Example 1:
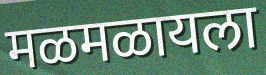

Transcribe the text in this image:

मळमळायला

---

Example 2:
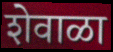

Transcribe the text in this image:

शेवाळा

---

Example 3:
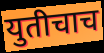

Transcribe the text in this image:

युतीचाच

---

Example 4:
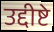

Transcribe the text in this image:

उद्दीष्टे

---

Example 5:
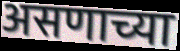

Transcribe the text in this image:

असणाच्या